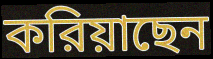
করিয়াছেন